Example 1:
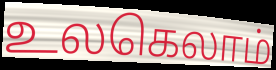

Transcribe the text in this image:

உலகெலாம்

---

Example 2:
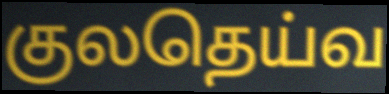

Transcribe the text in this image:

குலதெய்வ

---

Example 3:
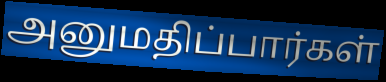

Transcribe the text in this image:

அனுமதிப்பார்கள்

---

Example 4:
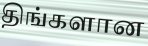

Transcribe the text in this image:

திங்களான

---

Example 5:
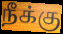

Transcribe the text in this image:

நீக்கு